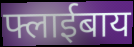
फ्लाईबाय